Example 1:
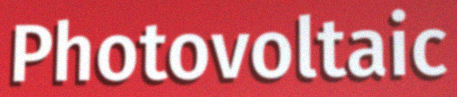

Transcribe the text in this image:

Photovoltaic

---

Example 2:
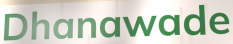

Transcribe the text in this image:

Dhanawade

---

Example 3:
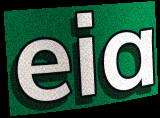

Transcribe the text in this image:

eia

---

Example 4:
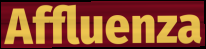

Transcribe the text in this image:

Affluenza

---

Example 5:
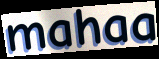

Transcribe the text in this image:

mahaa